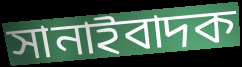
সানাইবাদক